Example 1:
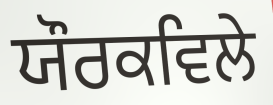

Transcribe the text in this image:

ਯੌਰਕਵਿਲੇ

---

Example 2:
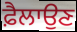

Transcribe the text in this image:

ਫ਼ੈਲਾਉਣ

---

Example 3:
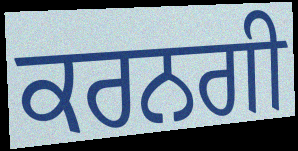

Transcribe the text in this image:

ਕਰਨਗੀ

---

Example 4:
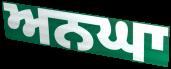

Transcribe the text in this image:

ਅਨਘਾ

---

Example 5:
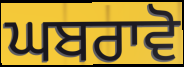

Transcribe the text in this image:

ਘਬਰਾਵੋ